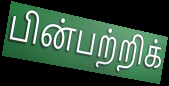
பின்பற்றிக்